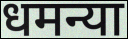
धमन्या